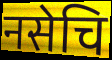
नसेचि